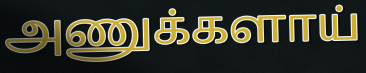
அணுக்களாய்